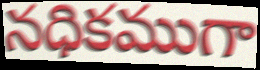
నధికముగా